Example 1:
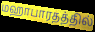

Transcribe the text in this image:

மஹாபாரதத்தில்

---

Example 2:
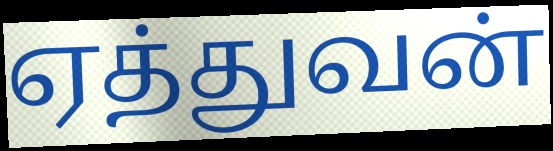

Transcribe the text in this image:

ஏத்துவன்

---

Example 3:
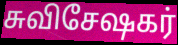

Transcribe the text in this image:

சுவிசேஷகர்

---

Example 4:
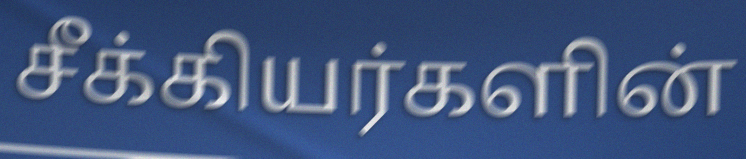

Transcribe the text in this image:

சீக்கியர்களின்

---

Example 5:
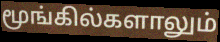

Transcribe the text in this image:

மூங்கில்களாலும்